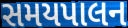
સમયપાલન